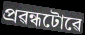
প্ৰৱন্ধটোৱে